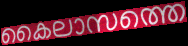
കൈലാസത്തെ